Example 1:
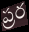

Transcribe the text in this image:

ప్రర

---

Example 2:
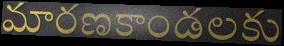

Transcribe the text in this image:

మారణకాండలకు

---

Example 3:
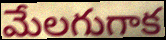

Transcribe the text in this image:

మేలగుగాక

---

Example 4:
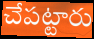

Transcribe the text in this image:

చేపట్టారు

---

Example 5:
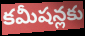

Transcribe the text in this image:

కమీషన్లకు